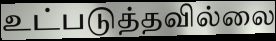
உட்படுத்தவில்லை